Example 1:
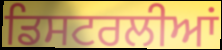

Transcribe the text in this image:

ਡਿਸਟਰਲੀਆਂ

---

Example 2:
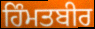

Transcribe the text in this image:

ਹਿੰਮਤਬੀਰ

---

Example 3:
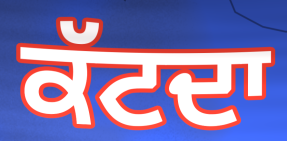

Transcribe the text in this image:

ਕੱਟਦਾ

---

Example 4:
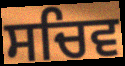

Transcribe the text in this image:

ਸਚਿਵ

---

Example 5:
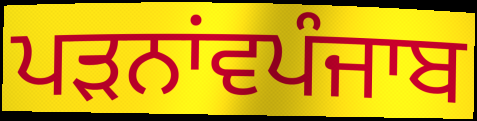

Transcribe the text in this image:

ਪੜਨਾਂਵਪੰਜਾਬ